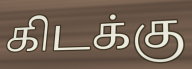
கிடக்கு